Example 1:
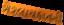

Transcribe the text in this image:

ગેરલાયકાતની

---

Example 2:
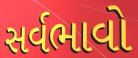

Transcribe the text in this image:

સર્વભાવો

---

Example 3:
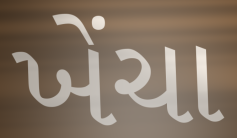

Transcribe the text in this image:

ખેંચા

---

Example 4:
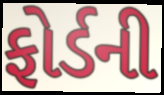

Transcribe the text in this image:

ફોર્ડની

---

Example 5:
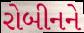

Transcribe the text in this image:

રોબીનને